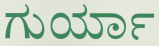
ಗುರ್ಯಾ